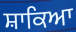
ਸ਼ਾਕਿਆ